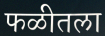
फळीतला